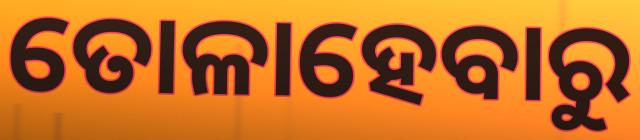
ତୋଳାହେବାରୁ